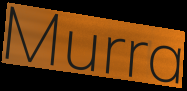
Murra